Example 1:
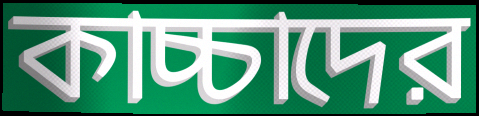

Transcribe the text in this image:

কাচ্চাদের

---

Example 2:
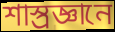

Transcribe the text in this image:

শাস্ত্রজ্ঞানে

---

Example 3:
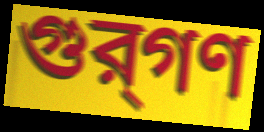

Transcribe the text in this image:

গুর্‌গণ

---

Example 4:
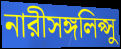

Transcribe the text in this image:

নারীসঙ্গলিপ্সু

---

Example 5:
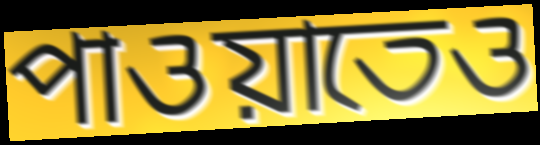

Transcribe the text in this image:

পাওয়াতেও